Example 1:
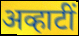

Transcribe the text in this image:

अव्हाटीं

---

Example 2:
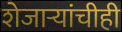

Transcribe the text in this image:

शेजाऱ्यांचीही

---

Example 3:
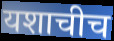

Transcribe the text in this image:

यशाचीच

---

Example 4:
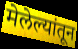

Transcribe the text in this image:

मेलेल्यांतून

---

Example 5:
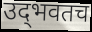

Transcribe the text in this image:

उद्‌भवतच